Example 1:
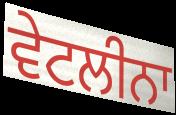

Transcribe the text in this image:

ਵੇਟਲੀਨਾ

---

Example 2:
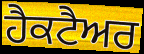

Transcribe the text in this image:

ਹੈਕਟੈਅਰ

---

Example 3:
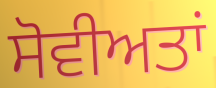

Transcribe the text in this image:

ਸੋਵੀਅਤਾਂ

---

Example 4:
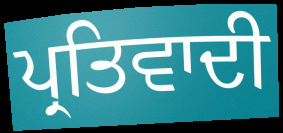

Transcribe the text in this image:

ਪ੍ਰਤਿਵਾਦੀ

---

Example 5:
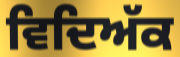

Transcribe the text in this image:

ਵਿਦਿਅੱਕ